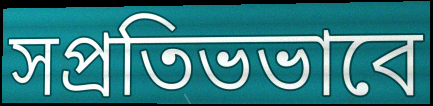
সপ্রতিভভাবে